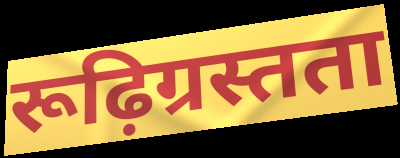
रूढ़िग्रस्तता